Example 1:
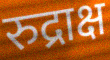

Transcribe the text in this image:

रुद्राक्ष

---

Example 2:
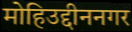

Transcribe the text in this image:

मोहिउद्दीननगर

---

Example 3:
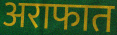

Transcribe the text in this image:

अराफात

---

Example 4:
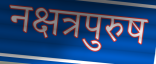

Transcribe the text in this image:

नक्षत्रपुरुष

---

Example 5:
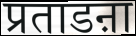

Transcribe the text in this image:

प्रताडऩा